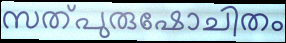
സത്പുരുഷോചിതം